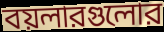
বয়লারগুলোর